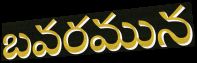
బవరమున